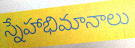
స్నేహాభిమానాలు